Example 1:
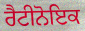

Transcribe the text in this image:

ਰੈਟੀਨੋਇਕ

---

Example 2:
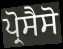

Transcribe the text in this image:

ਪ੍ਰੋਸੈਸੋ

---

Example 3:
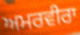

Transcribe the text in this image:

ਅਮਰਵੀਰਾ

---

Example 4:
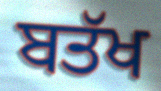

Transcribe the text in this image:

ਬਤੱਖ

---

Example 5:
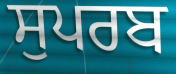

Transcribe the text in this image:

ਸੁਪਰਬ